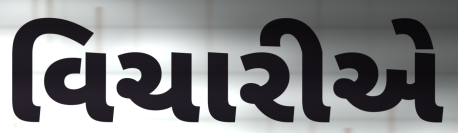
વિચારીએ